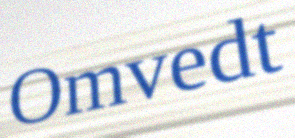
Omvedt